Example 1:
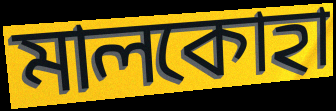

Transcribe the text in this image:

মালকোহা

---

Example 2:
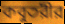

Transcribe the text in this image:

কবুতরীর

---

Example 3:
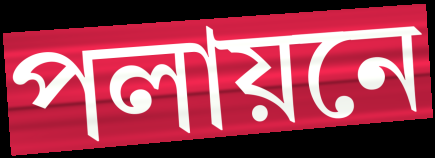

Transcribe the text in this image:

পলায়নে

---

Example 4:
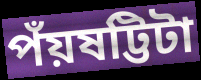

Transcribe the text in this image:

পঁয়ষট্টিটা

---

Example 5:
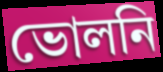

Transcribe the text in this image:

ভোলনি